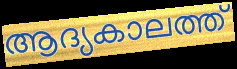
ആദ്യകാലത്ത്